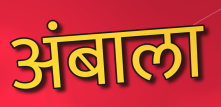
अंबाला